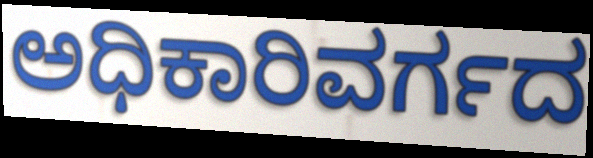
ಅಧಿಕಾರಿವರ್ಗದ